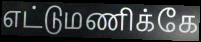
எட்டுமணிக்கே